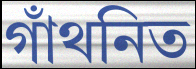
গাঁথনিত